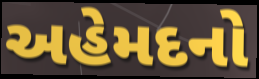
અહેમદનો